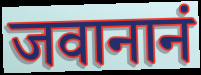
जवानानं